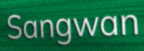
Sangwan